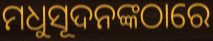
ମଧୁସୂଦନଙ୍କଠାରେ